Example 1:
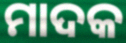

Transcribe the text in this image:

ମାଦକ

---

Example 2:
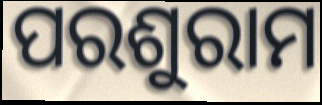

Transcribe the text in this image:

ପରଶୁରାମ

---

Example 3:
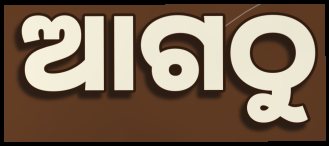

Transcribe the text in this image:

ଆଗଠୁ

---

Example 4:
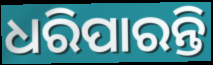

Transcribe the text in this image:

ଧରିପାରନ୍ତି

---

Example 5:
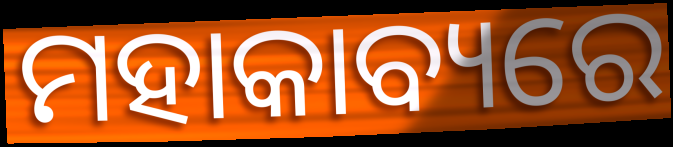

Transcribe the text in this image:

ମହାକାବ୍ୟରେ